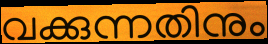
വക്കുന്നതിനും